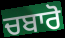
ਚਬਾਰੋ